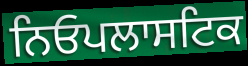
ਨਿਓਪਲਾਸਟਿਕ